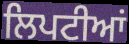
ਲਿਪਟੀਆਂ